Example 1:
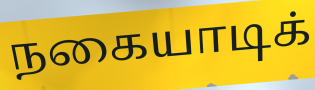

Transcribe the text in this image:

நகையாடிக்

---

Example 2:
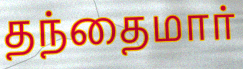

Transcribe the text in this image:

தந்தைமார்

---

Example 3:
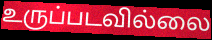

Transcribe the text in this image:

உருப்படவில்லை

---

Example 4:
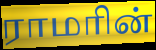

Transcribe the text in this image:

ராமரின்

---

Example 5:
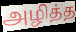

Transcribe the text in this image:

அழித்த